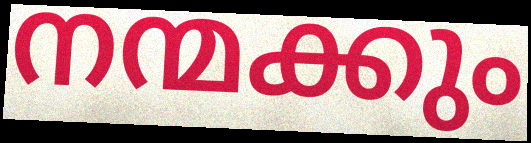
നന്മക്കും